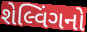
શેલ્વિંગનો